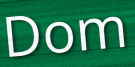
Dom